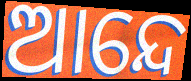
ଆନ୍ଦେ